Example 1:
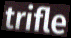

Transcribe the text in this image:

trifle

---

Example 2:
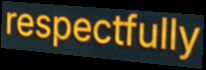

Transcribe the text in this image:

respectfully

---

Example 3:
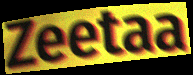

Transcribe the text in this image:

Zeetaa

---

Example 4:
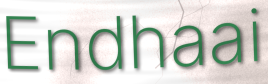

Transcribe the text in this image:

Endhaai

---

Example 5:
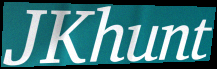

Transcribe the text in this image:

JKhunt